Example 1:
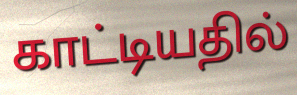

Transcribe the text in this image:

காட்டியதில்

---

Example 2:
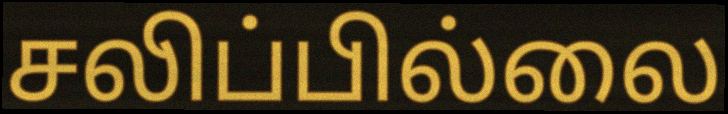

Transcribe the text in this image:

சலிப்பில்லை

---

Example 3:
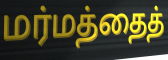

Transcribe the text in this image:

மர்மத்தைத்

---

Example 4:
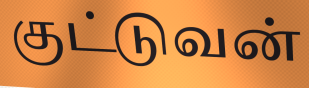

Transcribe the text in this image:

குட்டுவன்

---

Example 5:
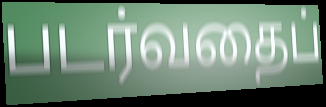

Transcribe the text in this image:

படர்வதைப்